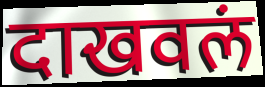
दाखवलं